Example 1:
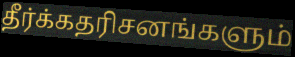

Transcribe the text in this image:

தீர்க்கதரிசனங்களும்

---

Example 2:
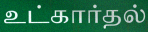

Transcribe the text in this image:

உட்கார்தல்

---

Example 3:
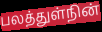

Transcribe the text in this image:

பலத்துள்நின்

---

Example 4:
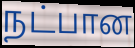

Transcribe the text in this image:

நட்பான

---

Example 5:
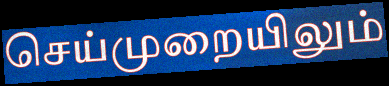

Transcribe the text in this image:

செய்முறையிலும்